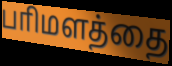
பரிமளத்தை